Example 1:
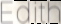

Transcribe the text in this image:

Edith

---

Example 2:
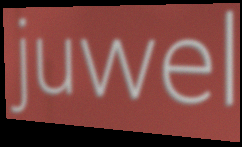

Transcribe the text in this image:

juwel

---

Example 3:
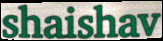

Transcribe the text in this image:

shaishav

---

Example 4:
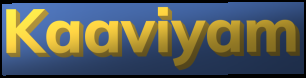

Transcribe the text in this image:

Kaaviyam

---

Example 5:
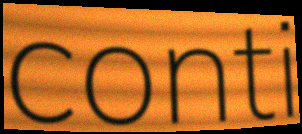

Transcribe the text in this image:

conti